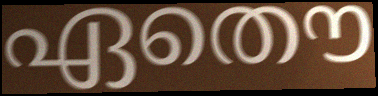
ഏതൌ